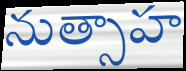
నుత్సాహ